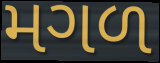
મગળ